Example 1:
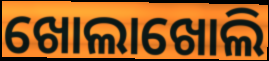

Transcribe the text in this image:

ଖୋଲାଖୋଲି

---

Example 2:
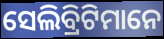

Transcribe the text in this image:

ସେଲିବ୍ରିଟିମାନେ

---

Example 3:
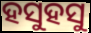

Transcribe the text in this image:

ହସୁହସୁ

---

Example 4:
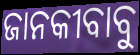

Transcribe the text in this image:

ଜାନକୀବାବୁ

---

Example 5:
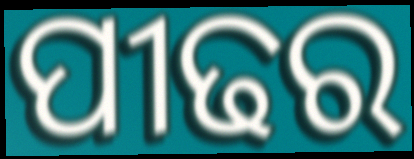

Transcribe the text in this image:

ପୀଢର